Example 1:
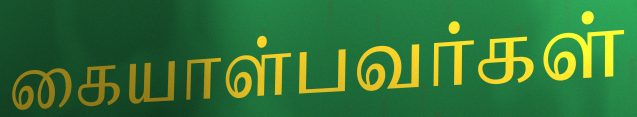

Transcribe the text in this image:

கையாள்பவர்கள்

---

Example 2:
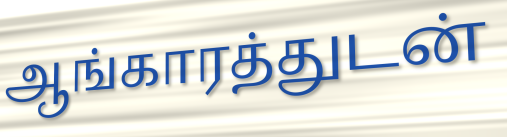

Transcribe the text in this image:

ஆங்காரத்துடன்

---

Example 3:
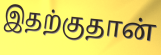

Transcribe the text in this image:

இதற்குதான்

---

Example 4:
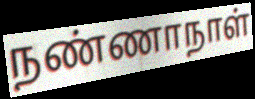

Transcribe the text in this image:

நண்ணாநாள்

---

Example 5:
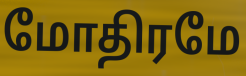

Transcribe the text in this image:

மோதிரமே